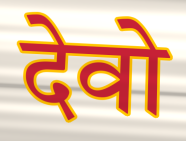
देवो